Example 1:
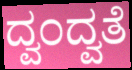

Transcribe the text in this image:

ದ್ವಂದ್ವತೆ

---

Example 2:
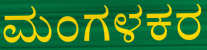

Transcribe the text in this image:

ಮಂಗಳಕರ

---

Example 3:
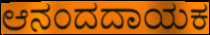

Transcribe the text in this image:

ಆನಂದದಾಯಕ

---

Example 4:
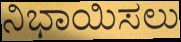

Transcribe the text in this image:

ನಿಭಾಯಿಸಲು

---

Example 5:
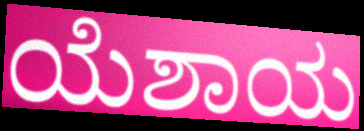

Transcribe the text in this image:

ಯೆಶಾಯ